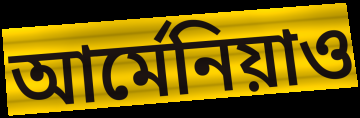
আর্মেনিয়াও